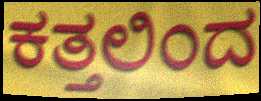
ಕತ್ತಲಿಂದ